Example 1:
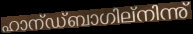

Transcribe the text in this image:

ഹാന്ഡ്ബാഗില്നിന്നു്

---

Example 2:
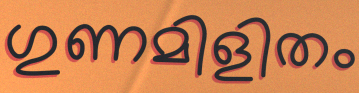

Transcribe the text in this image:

ഗുണമിളിതം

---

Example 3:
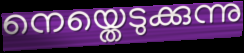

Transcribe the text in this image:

നെയ്തെടുക്കുന്നു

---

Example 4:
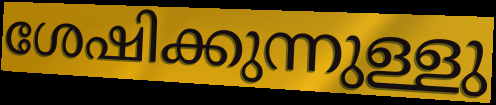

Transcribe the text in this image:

ശേഷിക്കുന്നുള്ളു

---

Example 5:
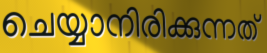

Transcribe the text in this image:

ചെയ്യാനിരിക്കുന്നത്